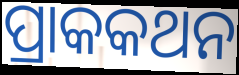
ପ୍ରାକକଥନ